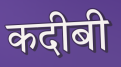
कदीबी